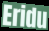
Eridu